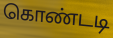
கொண்டடி